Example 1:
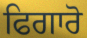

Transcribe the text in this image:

ਫਿਗਾਰੋ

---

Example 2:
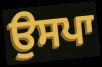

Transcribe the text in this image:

ਉਸਪਾ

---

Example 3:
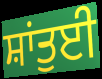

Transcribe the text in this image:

ਸ਼ਾਂਤੁਈ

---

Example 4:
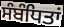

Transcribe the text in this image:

ਸੰਬੰਧਿਤਾਂ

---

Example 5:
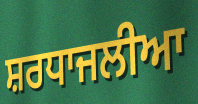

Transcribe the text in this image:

ਸ਼ਰਧਾਜਲੀਆ